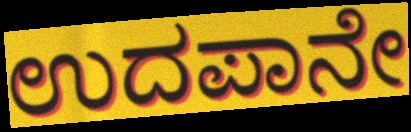
ಉದಪಾನೇ